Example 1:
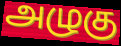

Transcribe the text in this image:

அழுகு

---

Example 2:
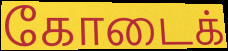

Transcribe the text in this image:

கோடைக்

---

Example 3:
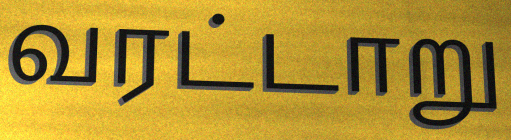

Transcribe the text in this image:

வரட்டாறு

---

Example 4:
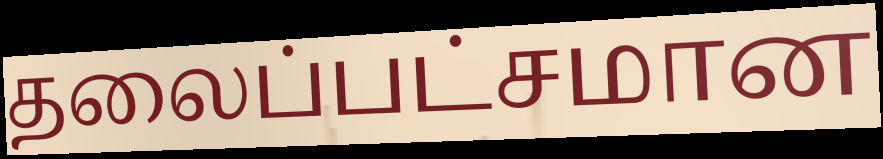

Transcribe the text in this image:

தலைப்பட்சமான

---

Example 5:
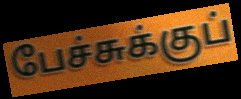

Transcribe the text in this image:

பேச்சுக்குப்